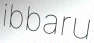
ibbaru